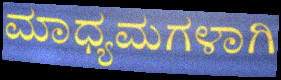
ಮಾಧ್ಯಮಗಳಾಗಿ